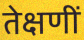
तेक्षणीं